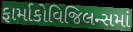
ફાર્માકોવિજિલન્સમાં